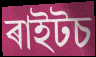
ৰাইটচ